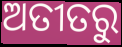
ଅତୀତରୁ